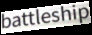
battleship